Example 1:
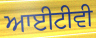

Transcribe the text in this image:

ਆਈਟੀਵੀ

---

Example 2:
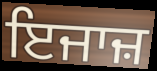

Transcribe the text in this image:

ਇਜਾਜ਼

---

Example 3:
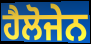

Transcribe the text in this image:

ਹੈਲੋਜੇਨ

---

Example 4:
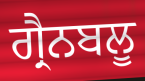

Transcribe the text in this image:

ਗ੍ਰੈਨਬਲੂ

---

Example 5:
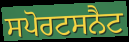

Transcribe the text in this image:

ਸਪੋਰਟਸਨੈਟ